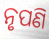
ନୃପଣି